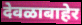
देवळाबाहेर